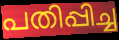
പതിപ്പിച്ച